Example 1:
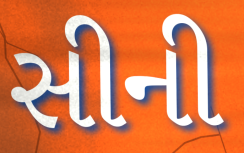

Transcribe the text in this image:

સીની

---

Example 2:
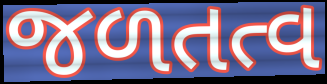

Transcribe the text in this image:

જળતત્વ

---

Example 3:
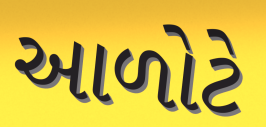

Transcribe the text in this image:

આળોટે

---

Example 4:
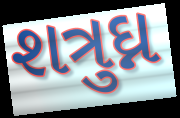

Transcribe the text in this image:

શત્રુઘ્ન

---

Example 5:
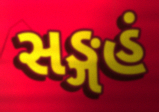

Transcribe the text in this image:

સઙ્ગહં